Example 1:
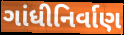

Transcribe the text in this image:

ગાંધીનિર્વાણ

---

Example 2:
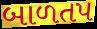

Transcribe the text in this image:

બાળતપ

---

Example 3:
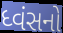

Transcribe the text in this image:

ધ્વંસનો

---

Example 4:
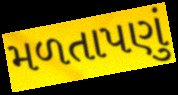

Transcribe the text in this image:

મળતાપણું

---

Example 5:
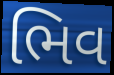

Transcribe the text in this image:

ભિવ